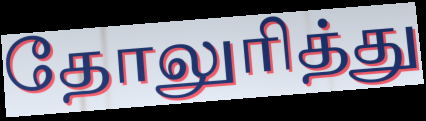
தோலுரித்து